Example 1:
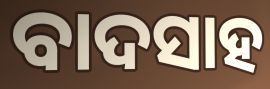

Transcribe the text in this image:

ବାଦସାହ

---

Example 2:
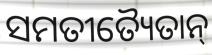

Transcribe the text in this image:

ସମତୀତ୍ୟୈତାନ୍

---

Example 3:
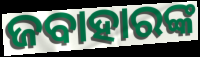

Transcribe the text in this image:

ଜବାହାରଙ୍କ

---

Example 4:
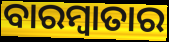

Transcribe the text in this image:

ବାରମ୍ବାତାର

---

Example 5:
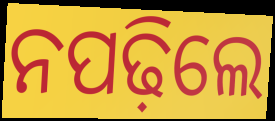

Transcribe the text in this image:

ନପଢ଼ିଲେ